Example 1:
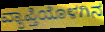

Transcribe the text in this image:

ವ್ಯಾಪ್ತಿಯೊಳಗಿನ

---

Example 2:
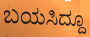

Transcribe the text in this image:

ಬಯಸಿದ್ದೂ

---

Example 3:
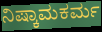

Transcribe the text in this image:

ನಿಷ್ಕಾಮಕರ್ಮ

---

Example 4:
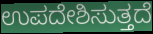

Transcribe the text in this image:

ಉಪದೇಶಿಸುತ್ತದೆ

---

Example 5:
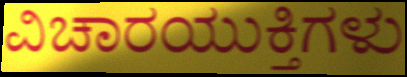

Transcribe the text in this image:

ವಿಚಾರಯುಕ್ತಿಗಳು